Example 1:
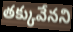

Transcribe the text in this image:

తక్కువేనని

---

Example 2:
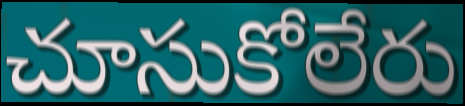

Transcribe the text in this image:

చూసుకోలేరు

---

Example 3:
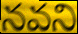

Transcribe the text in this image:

నవని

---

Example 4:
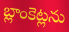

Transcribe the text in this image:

బ్లాంకెట్లను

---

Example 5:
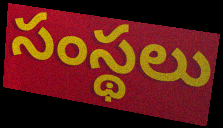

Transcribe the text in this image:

సంస్థలు